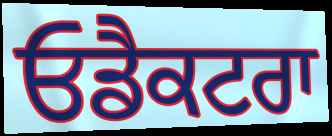
ਓਡੈਕਟਰਾ